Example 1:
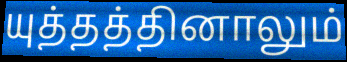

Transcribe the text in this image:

யுத்தத்தினாலும்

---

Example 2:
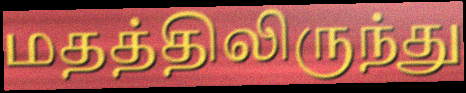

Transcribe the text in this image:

மதத்திலிருந்து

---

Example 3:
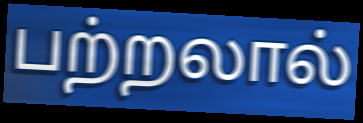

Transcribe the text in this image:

பற்றலால்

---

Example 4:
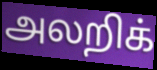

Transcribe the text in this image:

அலறிக்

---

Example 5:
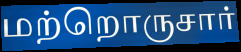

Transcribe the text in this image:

மற்றொருசார்